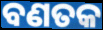
ବଣତକ